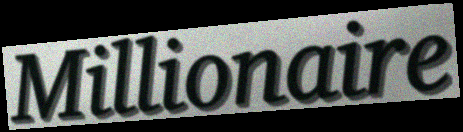
Millionaire